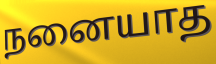
நனையாத